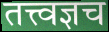
तत्त्वज्ञच